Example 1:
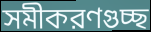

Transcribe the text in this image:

সমীকরণগুচ্ছ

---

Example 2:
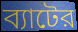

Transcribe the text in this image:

ব্যাটের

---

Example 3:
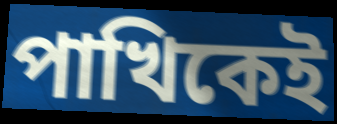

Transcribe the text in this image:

পাখিকেই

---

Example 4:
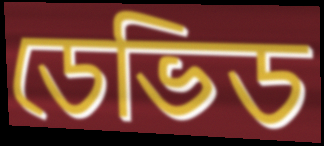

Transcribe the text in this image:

ডেভিড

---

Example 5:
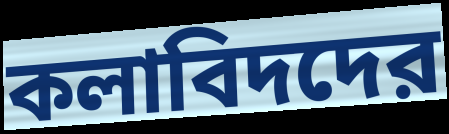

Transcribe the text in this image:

কলাবিদদের